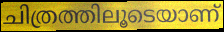
ചിത്രത്തിലൂടെയാണ്